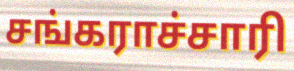
சங்கராச்சாரி